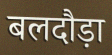
बलदौड़ा